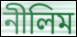
নীলিম